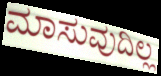
ಮಾಸುವುದಿಲ್ಲ